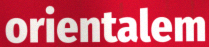
orientalem